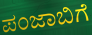
ಪಂಜಾಬಿಗೆ